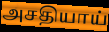
அசதியாய்